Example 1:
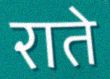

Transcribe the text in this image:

राते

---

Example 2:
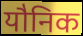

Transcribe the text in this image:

यौनिक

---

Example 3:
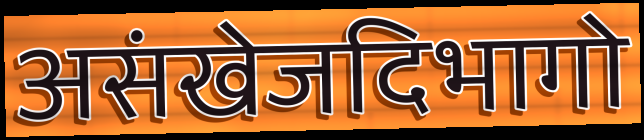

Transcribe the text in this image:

असंखेजदिभागो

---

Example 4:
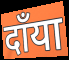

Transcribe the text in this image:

दाँया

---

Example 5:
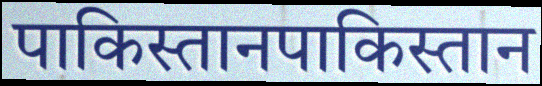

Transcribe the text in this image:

पाकिस्तानपाकिस्तान